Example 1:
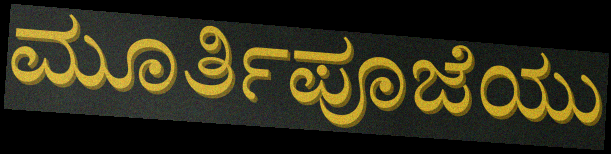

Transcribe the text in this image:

ಮೂರ್ತಿಪೂಜೆಯು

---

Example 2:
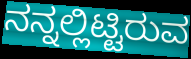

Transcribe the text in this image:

ನನ್ನಲ್ಲಿಟ್ಟಿರುವ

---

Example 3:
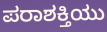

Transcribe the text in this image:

ಪರಾಶಕ್ತಿಯು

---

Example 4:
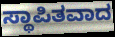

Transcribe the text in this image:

ಸ್ಥಾಪಿತವಾದ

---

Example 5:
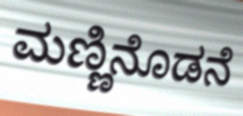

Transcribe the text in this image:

ಮಣ್ಣಿನೊಡನೆ